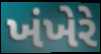
ખંખેરે